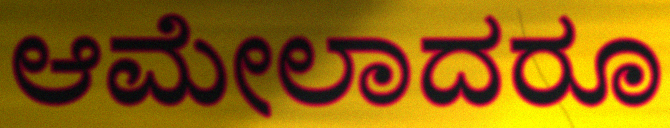
ಆಮೇಲಾದರೂ